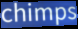
chimps